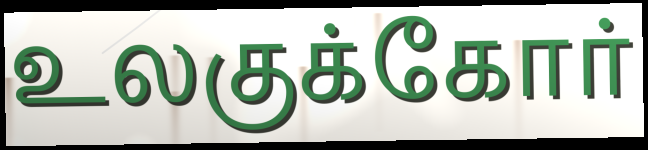
உலகுக்கோர்